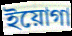
ইয়োগা